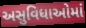
અસુવિધાઓમાં